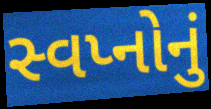
સ્વપ્નોનું